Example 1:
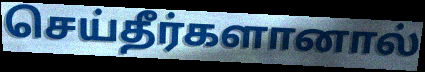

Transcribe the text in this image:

செய்தீர்களானால்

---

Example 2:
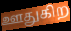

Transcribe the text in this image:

ஊதுகிற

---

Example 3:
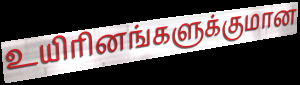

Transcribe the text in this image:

உயிரினங்களுக்குமான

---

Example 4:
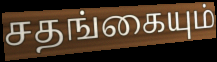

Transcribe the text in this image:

சதங்கையும்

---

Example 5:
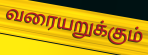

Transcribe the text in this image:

வரையறுக்கும்